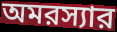
অমরস্যার